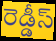
రెడ్డీస్